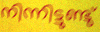
നിന്നിട്ടുണ്ടു്